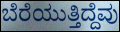
ಬೆರೆಯುತ್ತಿದ್ದೆವು